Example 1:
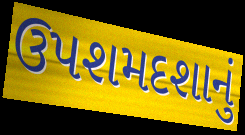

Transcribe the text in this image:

ઉપશમદશાનું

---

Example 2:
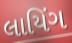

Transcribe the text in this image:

લાયિંગ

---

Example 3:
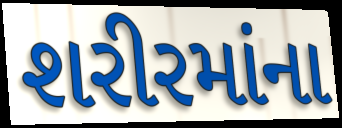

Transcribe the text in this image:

શરીરમાંના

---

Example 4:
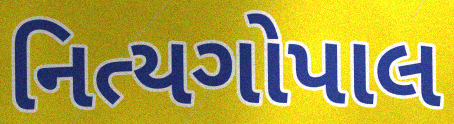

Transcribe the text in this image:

નિત્યગોપાલ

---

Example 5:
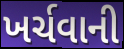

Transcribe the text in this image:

ખર્ચવાની